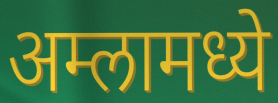
अम्लामध्ये